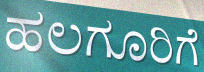
ಹಲಗೂರಿಗೆ